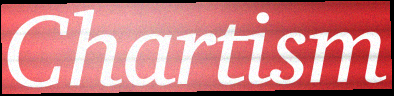
Chartism